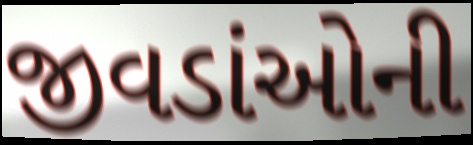
જીવડાંઓની